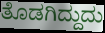
ತೊಡಗಿದ್ದುದು